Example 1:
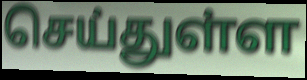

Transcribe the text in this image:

செய்துள்ள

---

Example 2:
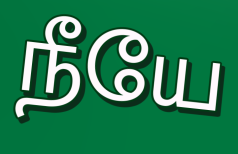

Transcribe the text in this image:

நீயே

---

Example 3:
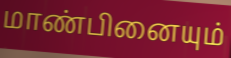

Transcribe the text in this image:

மாண்பினையும்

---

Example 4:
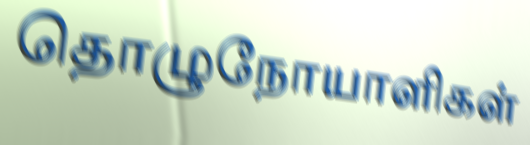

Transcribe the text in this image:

தொழுநோயாளிகள்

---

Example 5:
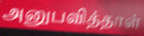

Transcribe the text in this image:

அனுபவித்தாள்